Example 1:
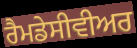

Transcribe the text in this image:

ਰੈਮਡੇਸੀਵੀਅਰ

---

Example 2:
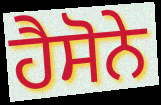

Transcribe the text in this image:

ਹੈਸੋਨੇ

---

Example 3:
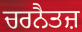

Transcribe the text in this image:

ਚਰਨੈਤਜ਼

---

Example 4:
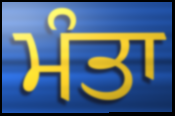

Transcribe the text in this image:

ਮੰਤਾ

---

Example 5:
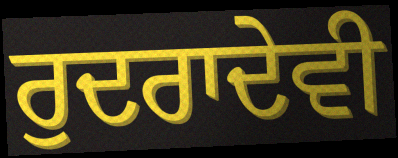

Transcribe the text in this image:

ਰੁਦਰਾਦੇਵੀ